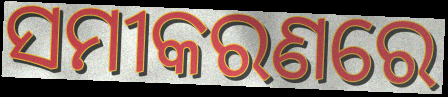
ସମୀକରଣରେ